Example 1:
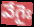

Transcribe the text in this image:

వేగైః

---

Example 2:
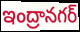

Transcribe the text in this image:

ఇంద్రానగర్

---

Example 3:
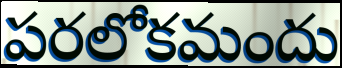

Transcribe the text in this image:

పరలోకమందు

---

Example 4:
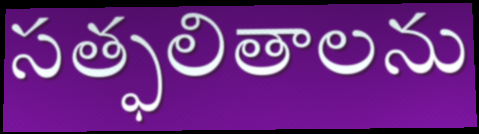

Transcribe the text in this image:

సత్ఫలితాలను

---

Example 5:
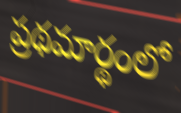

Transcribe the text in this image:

ప్రథమార్థంలో